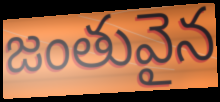
జంతువైన